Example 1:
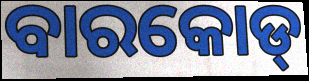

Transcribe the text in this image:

ବାରକୋଡ୍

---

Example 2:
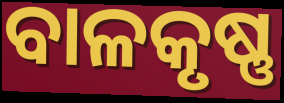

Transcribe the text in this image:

ବାଳକୃଷ୍ଣ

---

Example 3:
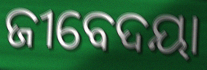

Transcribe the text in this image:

ଜୀବେଦୟା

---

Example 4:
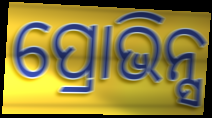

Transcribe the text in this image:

ପ୍ରୋଭିନ୍ସ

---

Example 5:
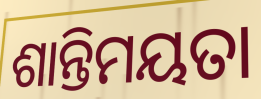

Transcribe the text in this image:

ଶାନ୍ତିମୟତା